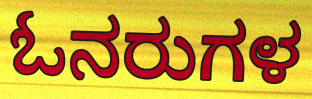
ಓನರುಗಳ